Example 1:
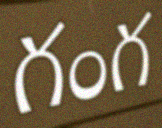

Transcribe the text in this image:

గంగ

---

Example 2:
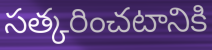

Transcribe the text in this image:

సత్కరించటానికి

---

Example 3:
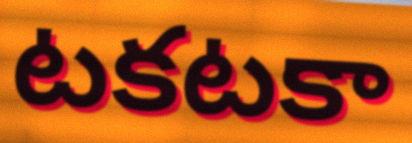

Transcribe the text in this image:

టకటకా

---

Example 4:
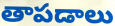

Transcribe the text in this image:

తాపడాలు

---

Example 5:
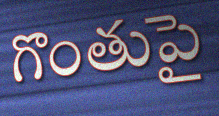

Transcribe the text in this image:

గొంతుపై